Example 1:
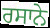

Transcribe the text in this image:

ਰਸਾਨੇ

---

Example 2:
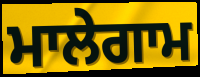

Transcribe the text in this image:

ਮਾਲੇਗਾਮ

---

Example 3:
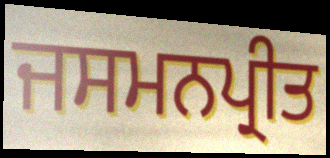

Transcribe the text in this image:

ਜਸਮਨਪ੍ਰੀਤ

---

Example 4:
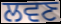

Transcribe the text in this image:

ਲਵਣ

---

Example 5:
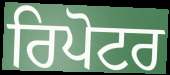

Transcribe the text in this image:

ਰਿਪੋਟਰ